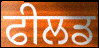
ਫੀਲਡ